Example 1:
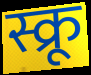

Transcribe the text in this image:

स्क्रू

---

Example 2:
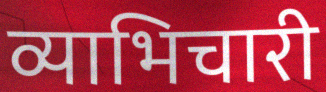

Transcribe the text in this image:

व्याभिचारी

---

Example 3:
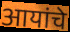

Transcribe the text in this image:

आयांचे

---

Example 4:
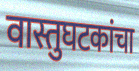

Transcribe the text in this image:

वास्तुघटकांचा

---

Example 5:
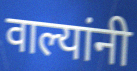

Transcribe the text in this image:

वाल्यांनी